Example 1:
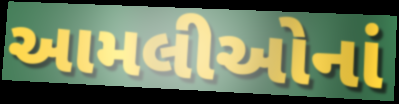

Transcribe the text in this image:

આમલીઓનાં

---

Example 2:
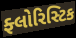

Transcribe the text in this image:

ફ્લોરિસ્ટિક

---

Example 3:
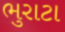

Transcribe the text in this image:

ભુરાટા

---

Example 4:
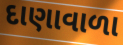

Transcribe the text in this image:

દાણાવાળા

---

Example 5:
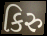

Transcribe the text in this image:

કિરુ